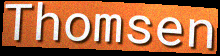
Thomsen